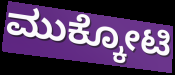
ಮುಕ್ಕೋಟಿ